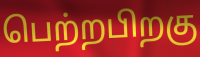
பெற்றபிறகு